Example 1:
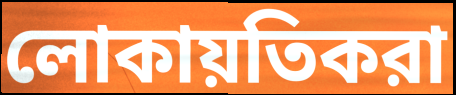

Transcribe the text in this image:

লোকায়তিকরা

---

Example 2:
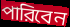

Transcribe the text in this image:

পারিবেন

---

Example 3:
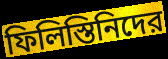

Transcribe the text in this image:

ফিলিস্তিনিদের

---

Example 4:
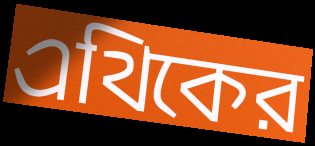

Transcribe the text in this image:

এথিকের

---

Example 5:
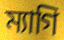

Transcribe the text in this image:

ম্যাগি